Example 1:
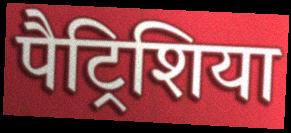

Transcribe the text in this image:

पैट्रिशिया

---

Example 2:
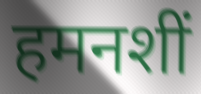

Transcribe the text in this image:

हमनशीं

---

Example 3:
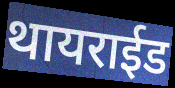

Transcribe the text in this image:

थायराईड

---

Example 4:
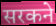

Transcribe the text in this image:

सरकने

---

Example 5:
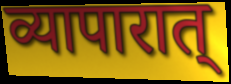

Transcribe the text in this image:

व्यापारात्